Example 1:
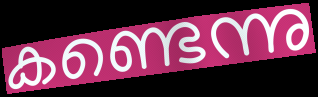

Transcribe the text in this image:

കണ്ടെന്നു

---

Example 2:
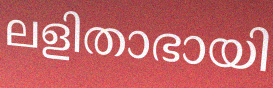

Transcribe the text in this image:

ലളിതാഭായി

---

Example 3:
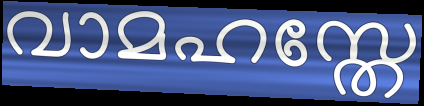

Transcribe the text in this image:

വാമഹസ്തേ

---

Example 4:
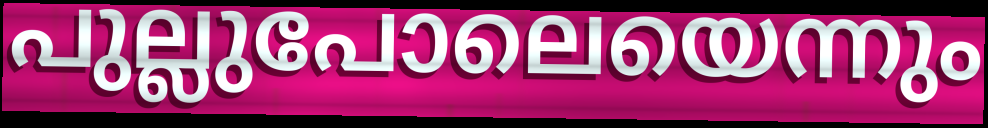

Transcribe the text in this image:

പുല്ലുപോലെയെന്നും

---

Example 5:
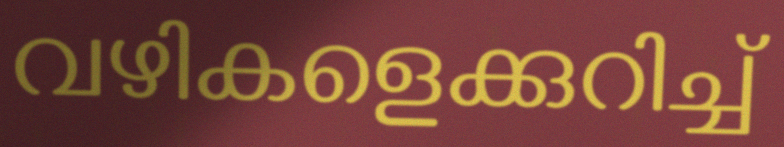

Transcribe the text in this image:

വഴികളെക്കുറിച്ച്